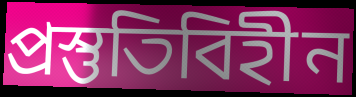
প্রস্তুতিবিহীন